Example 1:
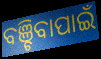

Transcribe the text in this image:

ବଞ୍ଚିବାପାଇଁ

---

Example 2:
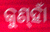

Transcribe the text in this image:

କୁଣ୍‌ହାଁ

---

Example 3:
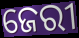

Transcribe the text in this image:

ଜେରୀ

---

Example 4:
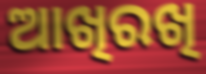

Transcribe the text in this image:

ଆଖିରଖି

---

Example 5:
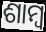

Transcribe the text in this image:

ଶାମ୍ୱ